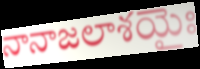
నానాజలాశయైః